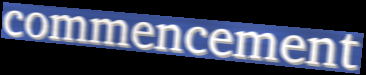
commencement